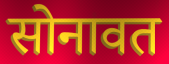
सोनावत